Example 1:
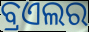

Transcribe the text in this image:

ବ୍ରଏଲର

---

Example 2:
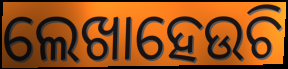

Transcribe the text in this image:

ଲେଖାହେଉଚି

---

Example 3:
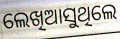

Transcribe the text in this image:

ଲେଖିଆସୁଥିଲେ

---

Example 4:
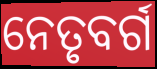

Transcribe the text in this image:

ନେତୃବର୍ଗ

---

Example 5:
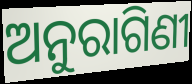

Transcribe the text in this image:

ଅନୁରାଗିଣୀ